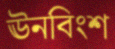
ঊনবিংশ